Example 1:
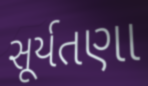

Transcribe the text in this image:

સૂર્યતણા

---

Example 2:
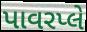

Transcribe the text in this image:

પાવરપ્લે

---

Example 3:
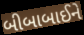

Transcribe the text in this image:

બીબાબાઈને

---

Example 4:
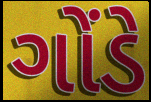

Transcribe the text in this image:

ગોંડે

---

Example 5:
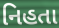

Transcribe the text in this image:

નિહતા